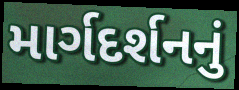
માર્ગદર્શનનું